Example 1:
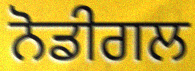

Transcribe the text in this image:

ਨੋਡੀਗਲ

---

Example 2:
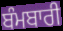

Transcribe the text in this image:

ਬੰਮਬਾਰੀ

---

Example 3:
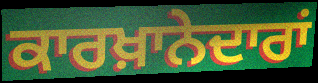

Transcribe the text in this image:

ਕਾਰਖ਼ਾਨੇਦਾਰਾਂ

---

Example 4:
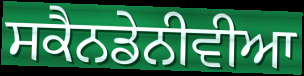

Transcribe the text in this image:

ਸਕੈਨਡੇਨੀਵੀਆ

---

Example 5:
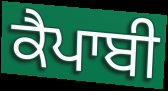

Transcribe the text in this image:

ਕੈਪਾਬੀ